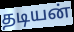
தடியன்